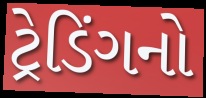
ટ્રેડિંગનો